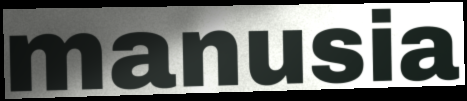
manusia